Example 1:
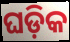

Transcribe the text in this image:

ଘଡ଼ିକ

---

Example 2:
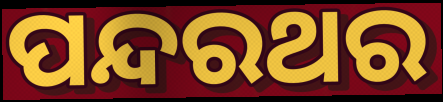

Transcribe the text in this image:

ପନ୍ଦରଥର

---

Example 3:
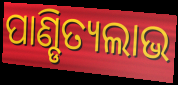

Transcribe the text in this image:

ପାଣ୍ଡିତ୍ୟଲାଭ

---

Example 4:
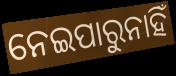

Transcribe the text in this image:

ନେଇପାରୁନାହିଁ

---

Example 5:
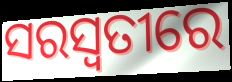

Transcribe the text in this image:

ସରସ୍ୱତୀରେ